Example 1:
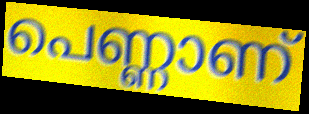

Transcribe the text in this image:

പെണ്ണാണ്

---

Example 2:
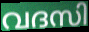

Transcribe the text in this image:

വദസി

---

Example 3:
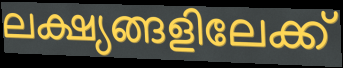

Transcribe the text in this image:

ലക്ഷ്യങ്ങളിലേക്ക്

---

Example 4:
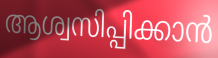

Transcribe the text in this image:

ആശ്വസിപ്പിക്കാൻ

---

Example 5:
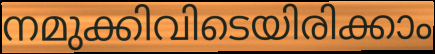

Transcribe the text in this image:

നമുക്കിവിടെയിരിക്കാം